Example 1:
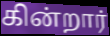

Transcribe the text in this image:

கின்றார்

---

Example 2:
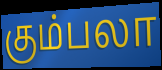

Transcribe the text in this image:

கும்பலா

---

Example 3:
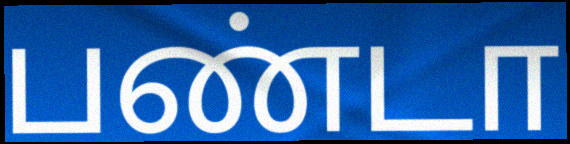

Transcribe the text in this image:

பண்டா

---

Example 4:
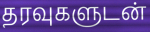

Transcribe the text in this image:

தரவுகளுடன்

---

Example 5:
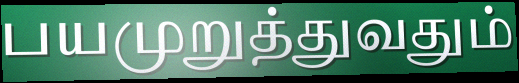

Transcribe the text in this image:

பயமுறுத்துவதும்